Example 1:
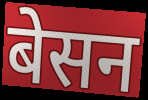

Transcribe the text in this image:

बेसन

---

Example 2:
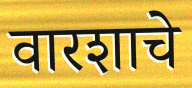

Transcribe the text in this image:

वारशाचे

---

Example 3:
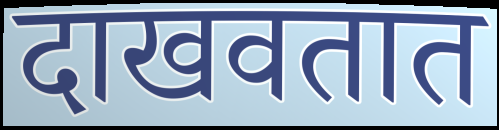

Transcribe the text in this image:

दाखवतात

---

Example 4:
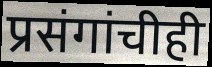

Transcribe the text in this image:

प्रसंगांचीही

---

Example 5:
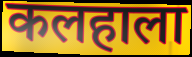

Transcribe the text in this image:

कलहाला